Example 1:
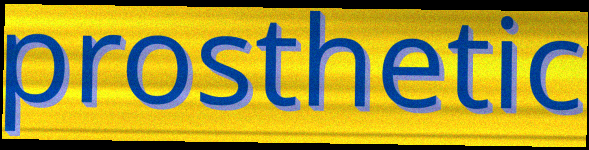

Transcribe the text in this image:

prosthetic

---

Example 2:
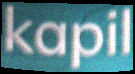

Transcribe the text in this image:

kapil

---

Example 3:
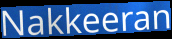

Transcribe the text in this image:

Nakkeeran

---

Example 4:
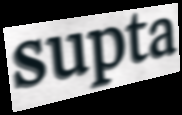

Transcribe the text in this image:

supta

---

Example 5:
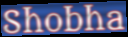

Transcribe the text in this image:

Shobha